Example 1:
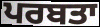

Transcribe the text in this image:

ਪਰਬਤਾ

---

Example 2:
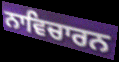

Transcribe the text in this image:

ਨਾਵਿਚਾਰਨ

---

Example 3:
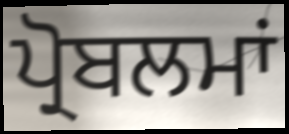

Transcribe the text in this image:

ਪ੍ਰੋਬਲਮਾਂ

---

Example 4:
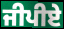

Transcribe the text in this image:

ਜੀਪੀਏ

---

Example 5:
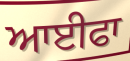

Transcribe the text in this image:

ਆਈਫਾ